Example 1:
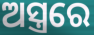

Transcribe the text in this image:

ଅସ୍ତ୍ରରେ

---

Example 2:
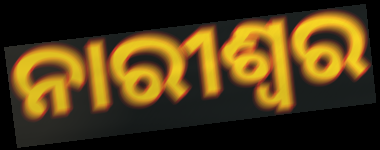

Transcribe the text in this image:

ନାରୀଶ୍ବର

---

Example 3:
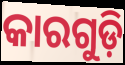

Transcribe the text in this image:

କାରଗୁଡ଼ି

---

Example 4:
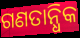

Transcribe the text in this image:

ଗଣତାନ୍ଧିକ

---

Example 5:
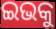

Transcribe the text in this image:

ଇଭକୁ